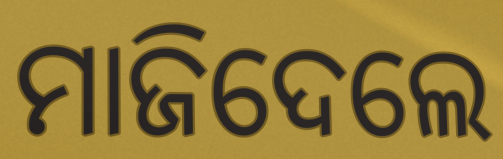
ମାଜିଦେଲେ